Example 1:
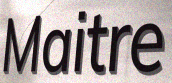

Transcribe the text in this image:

Maitre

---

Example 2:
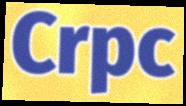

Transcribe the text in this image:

Crpc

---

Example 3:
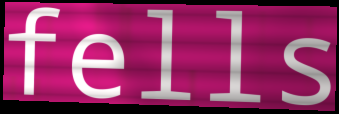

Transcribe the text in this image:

fells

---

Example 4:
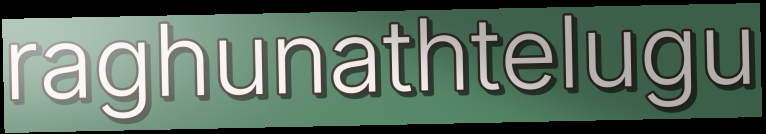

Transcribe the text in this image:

raghunathtelugu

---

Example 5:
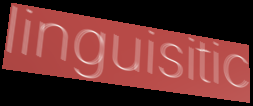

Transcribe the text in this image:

linguisitic